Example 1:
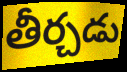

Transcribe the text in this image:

తీర్చడు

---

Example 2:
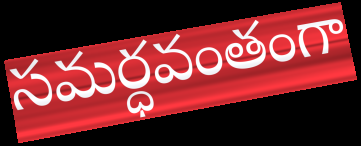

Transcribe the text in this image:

సమర్ధవంతంగా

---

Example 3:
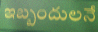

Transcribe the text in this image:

ఇబ్బందులనే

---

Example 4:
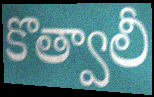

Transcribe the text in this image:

కొత్వాలీ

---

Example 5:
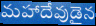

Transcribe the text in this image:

మహాదేవుడైన